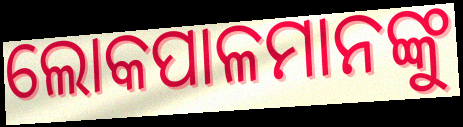
ଲୋକପାଳମାନଙ୍କୁ